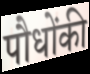
पौधोंकी